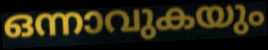
ഒന്നാവുകയും